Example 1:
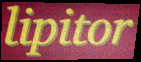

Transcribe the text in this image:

lipitor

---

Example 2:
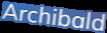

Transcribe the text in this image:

Archibald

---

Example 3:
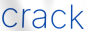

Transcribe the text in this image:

crack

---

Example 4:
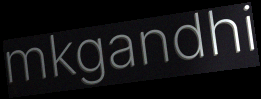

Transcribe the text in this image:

mkgandhi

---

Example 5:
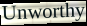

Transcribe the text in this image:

Unworthy